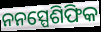
ନନସ୍ପେଶିଫିକ